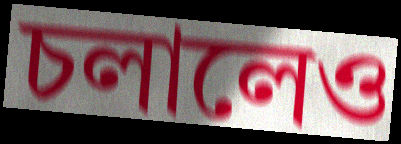
চলালেও